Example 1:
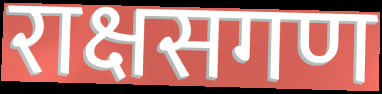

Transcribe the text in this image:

राक्षसगण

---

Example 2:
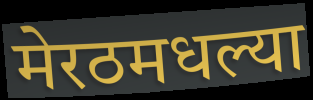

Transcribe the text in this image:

मेरठमधल्या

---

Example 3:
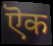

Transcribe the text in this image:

ऎक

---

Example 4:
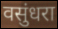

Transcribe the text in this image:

वसुंधरा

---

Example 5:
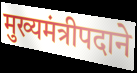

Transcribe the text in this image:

मुख्यमंत्रीपदाने